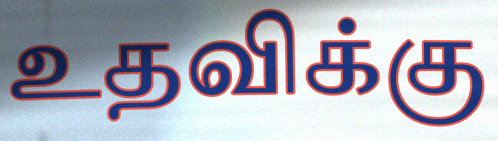
உதவிக்கு